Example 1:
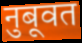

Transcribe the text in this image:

नुबूवत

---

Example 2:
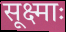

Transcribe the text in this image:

सूक्ष्माः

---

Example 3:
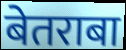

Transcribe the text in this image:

बेतराबा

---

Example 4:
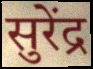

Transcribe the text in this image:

सुरेंद्र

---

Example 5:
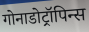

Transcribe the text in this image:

गोनाडोट्रॉपिन्स